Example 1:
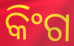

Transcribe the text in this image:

କିଂଗ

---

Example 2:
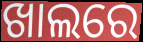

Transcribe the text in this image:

ଖାଲରେ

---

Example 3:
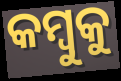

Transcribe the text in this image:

କମ୍ବୁକୁ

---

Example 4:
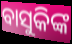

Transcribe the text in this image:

ବାସୁକିଙ୍କ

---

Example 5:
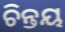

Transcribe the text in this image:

ଚିନ୍ତୟ